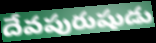
దేవపురుషుడు